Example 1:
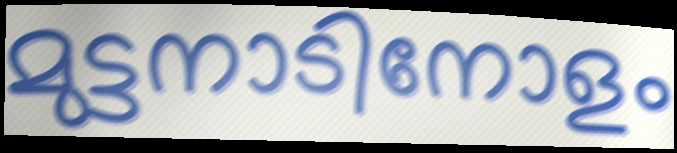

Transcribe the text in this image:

മുട്ടനാടിനോളം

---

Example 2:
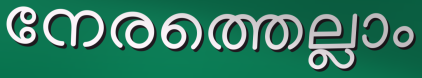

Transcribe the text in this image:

നേരത്തെല്ലാം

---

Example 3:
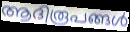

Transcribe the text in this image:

ആദിരൂപങ്ങൾ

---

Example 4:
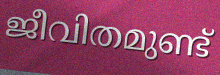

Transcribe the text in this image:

ജീവിതമുണ്ട്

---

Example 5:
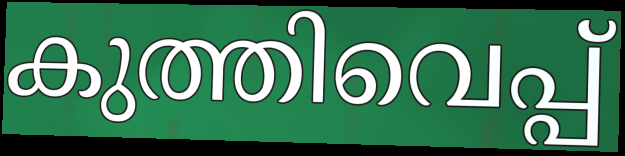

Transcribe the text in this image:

കുത്തിവെപ്പ്